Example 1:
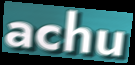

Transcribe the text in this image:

achu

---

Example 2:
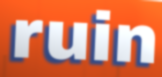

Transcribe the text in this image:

ruin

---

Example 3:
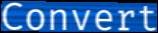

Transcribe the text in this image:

Convert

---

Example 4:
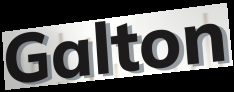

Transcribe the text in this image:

Galton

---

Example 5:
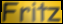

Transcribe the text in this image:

Fritz